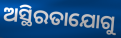
ଅସ୍ଥିରତାଯୋଗୁ